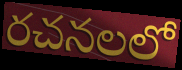
రచనలలో